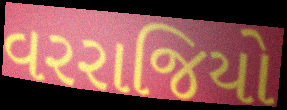
વરરાજિયો